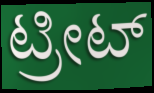
ಟ್ರೀಟ್